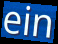
ein